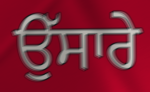
ਉੱਸਾਰੇ